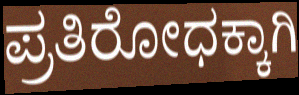
ಪ್ರತಿರೋಧಕ್ಕಾಗಿ